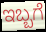
ಇಬ್ಬಗೆ